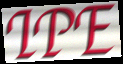
IPE